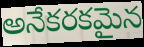
అనేకరకమైన